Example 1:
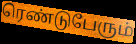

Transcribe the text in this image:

ரெண்டுபேரும்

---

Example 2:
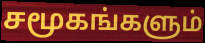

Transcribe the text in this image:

சமூகங்களும்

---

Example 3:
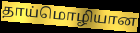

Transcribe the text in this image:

தாய்மொழியான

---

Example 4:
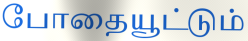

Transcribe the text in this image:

போதையூட்டும்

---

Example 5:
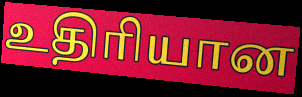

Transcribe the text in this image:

உதிரியான